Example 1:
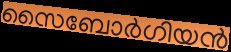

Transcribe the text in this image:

സൈബോർഗിയൻ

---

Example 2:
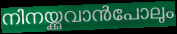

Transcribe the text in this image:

നിനയ്ക്കുവാൻപോലും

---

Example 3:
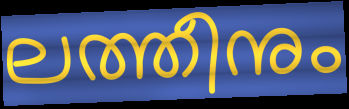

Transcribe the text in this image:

ലത്തീനും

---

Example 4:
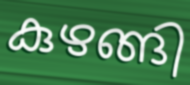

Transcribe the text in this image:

കുഴങ്ങി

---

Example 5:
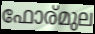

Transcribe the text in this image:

ഫോര്മുല